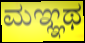
ಮಞ್ಞಥ